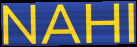
NAHI